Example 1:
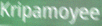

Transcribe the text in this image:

Kripamoyee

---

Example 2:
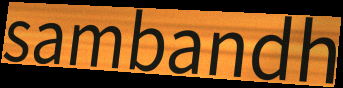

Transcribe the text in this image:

sambandh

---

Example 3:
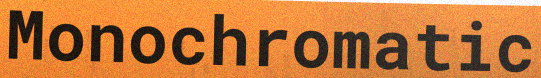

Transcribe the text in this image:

Monochromatic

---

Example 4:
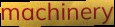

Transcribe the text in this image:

machinery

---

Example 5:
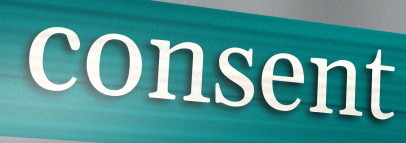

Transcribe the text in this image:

consent